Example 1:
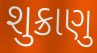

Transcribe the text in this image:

શુક્રાણુ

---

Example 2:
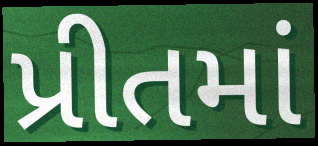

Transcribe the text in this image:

પ્રીતમાં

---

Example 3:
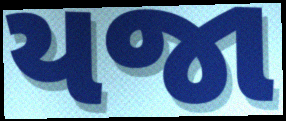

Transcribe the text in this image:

યજા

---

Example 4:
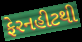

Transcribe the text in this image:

ફેરનહીટથી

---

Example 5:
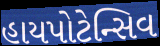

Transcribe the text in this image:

હાયપોટેન્સિવ